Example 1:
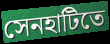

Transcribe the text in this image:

সেনহাটিতে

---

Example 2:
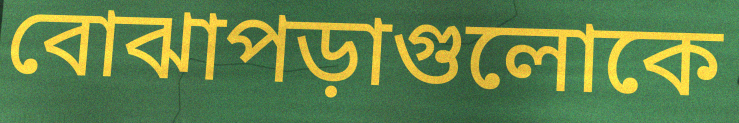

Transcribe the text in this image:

বোঝাপড়াগুলোকে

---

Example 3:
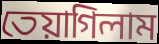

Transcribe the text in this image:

তেয়াগিলাম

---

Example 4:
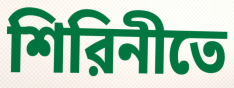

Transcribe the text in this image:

শিরিনীতে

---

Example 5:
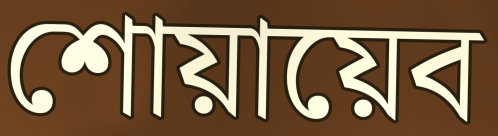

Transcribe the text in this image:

শোয়ায়েব